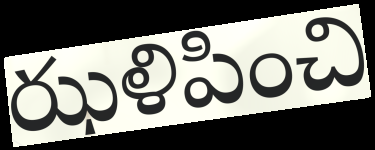
ఝళిపించి